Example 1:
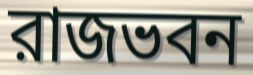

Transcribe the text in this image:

রাজভবন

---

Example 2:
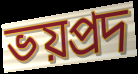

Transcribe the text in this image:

ভয়প্রদ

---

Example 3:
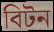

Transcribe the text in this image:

বিটন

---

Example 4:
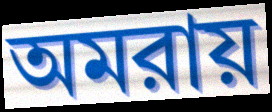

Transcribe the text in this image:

অমরায়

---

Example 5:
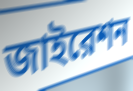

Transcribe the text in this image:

জাইরেশন